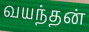
வயந்தன்